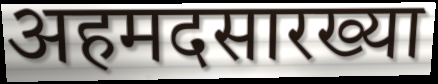
अहमदसारख्या